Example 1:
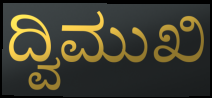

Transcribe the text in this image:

ದ್ವಿಮುಖಿ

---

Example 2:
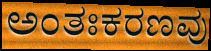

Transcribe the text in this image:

ಅಂತಃಕರಣವು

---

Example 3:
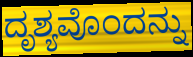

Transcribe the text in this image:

ದೃಶ್ಯವೊಂದನ್ನು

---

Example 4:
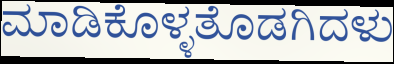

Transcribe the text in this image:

ಮಾಡಿಕೊಳ್ಳತೊಡಗಿದಳು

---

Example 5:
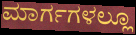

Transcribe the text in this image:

ಮಾರ್ಗಗಳಲ್ಲೂ